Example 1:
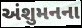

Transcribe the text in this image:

અંશુમનના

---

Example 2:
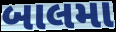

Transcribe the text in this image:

બાલમા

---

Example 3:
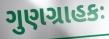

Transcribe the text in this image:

ગુણગ્રાહકઃ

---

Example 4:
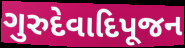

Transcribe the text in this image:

ગુરુદેવાદિપૂજન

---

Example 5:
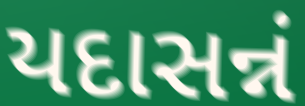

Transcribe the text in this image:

યદાસન્નં